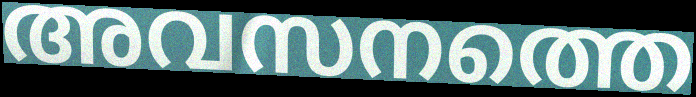
അവസനത്തെ